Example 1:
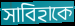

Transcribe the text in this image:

সাবিহাকে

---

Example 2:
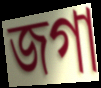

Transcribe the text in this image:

জগা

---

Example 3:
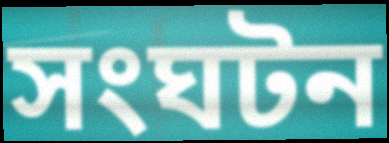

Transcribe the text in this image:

সংঘটন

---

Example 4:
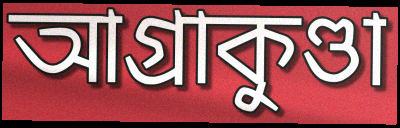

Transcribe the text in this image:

আগ্রাকুণ্ডা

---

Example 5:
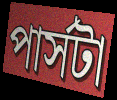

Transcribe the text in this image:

পার্সটা